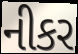
નીકર